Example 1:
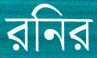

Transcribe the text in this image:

রনির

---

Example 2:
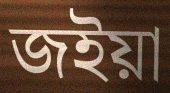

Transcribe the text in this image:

জইয়া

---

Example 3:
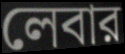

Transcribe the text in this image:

লেবার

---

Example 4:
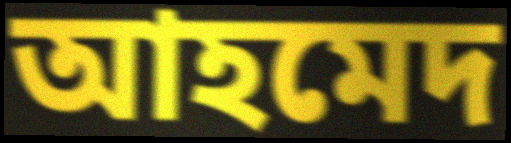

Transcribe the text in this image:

আহমেদ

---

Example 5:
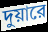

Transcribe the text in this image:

দুয়ারে